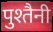
पुश्तैनी